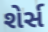
શેર્સ